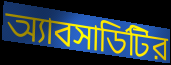
অ্যাবসার্ডিটির